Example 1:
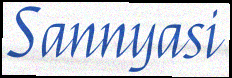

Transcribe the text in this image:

Sannyasi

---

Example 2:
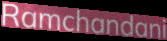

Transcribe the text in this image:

Ramchandani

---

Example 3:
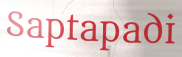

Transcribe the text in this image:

Saptapadi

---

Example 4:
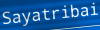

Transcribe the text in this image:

Sayatribai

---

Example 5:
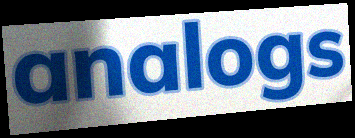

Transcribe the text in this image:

analogs